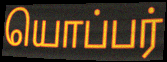
யொப்பர்